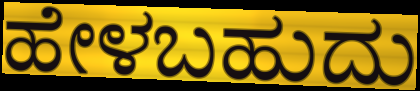
ಹೇಳಬಹುದು